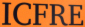
ICFRE